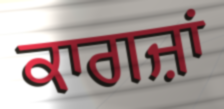
ਕਾਗਜ਼ਾਂ